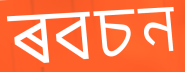
ৰবচন